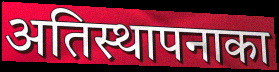
अतिस्थापनाका